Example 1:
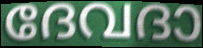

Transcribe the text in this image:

ദേവദാ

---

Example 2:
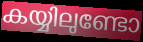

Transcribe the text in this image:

കയ്യിലുണ്ടോ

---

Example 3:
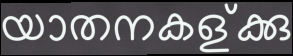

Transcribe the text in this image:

യാതനകള്ക്കു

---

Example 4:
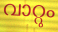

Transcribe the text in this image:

വാറ്റും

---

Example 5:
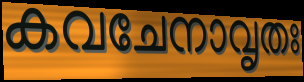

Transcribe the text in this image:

കവചേനാവൃതഃ